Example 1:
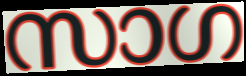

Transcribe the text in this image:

സാഗ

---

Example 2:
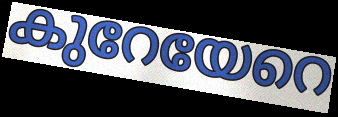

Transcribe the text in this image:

കുറേയേറെ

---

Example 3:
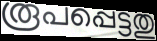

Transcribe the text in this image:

രൂപപ്പെട്ടതു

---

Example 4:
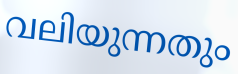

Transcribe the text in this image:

വലിയുന്നതും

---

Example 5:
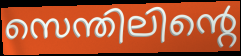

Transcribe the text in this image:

സെന്തിലിന്റെ